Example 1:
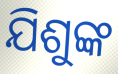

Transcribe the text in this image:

ଯିଶୁଙ୍କ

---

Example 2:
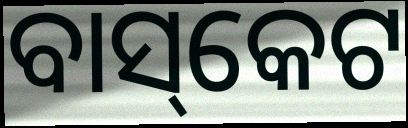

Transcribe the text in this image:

ବାସ୍‌କେଟ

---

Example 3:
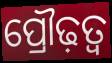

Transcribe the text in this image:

ପ୍ରୌଢ଼ତ୍ୱ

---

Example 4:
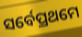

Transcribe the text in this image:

ସର୍ବେପ୍ରଥମେ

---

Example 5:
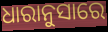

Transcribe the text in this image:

ଧାରାନୁସାରେ